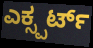
ಎಕ್ಸ್ಪರ್ಟ್